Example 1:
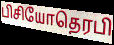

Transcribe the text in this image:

பிசியோதெரபி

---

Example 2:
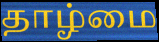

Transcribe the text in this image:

தாழ்மை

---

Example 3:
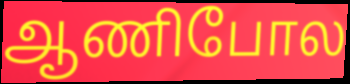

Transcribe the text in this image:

ஆணிபோல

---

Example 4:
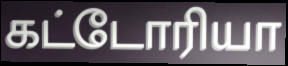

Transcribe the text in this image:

கட்டோரியா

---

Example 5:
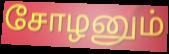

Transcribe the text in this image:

சோழனும்